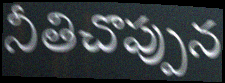
నీతిచొప్పున